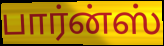
பார்ன்ஸ்